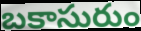
బకాసురుం